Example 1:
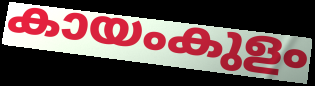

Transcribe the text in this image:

കായംകുളം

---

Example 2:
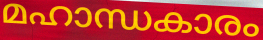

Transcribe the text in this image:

മഹാന്ധകാരം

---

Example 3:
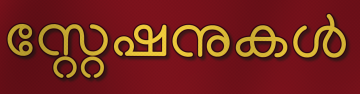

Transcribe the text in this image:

സ്റ്റേഷനുകൾ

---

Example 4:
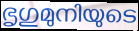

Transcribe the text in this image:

ഭൃഗുമുനിയുടെ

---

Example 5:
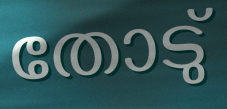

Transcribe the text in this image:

തോടു്